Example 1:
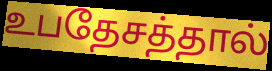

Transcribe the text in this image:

உபதேசத்தால்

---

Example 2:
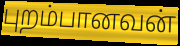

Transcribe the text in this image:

புறம்பானவன்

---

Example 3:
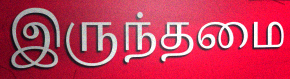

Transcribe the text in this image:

இருந்தமை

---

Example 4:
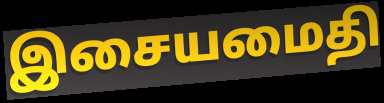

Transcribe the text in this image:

இசையமைதி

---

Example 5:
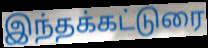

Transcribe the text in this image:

இந்தக்கட்டுரை